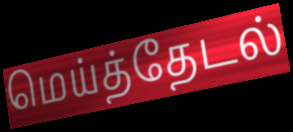
மெய்த்தேடல்